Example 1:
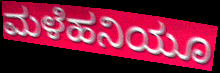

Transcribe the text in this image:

ಮಳೆಹನಿಯೂ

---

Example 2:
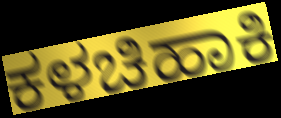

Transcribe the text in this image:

ಕಳಚಿಹಾಕಿ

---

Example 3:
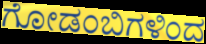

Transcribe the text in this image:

ಗೋಡಂಬಿಗಳಿಂದ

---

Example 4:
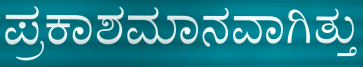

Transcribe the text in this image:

ಪ್ರಕಾಶಮಾನವಾಗಿತ್ತು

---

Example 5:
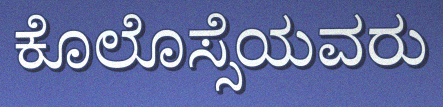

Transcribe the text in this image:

ಕೊಲೊಸ್ಸೆಯವರು